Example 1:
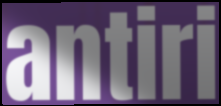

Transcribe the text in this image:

antiri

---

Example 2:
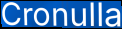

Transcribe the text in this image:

Cronulla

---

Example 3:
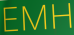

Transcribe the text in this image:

EMH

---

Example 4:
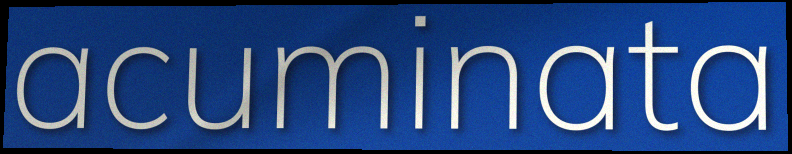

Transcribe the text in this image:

acuminata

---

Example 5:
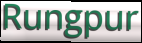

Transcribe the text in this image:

Rungpur